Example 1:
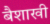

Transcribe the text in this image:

बैशाखी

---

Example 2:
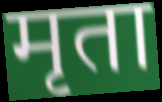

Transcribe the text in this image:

मृता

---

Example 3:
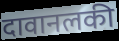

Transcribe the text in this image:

दावानलकी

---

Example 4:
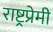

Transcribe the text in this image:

राष्ट्रप्रेमी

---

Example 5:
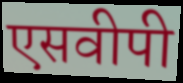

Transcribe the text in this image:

एसवीपी